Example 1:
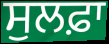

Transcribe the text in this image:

ਸੁਲਫ਼ਾ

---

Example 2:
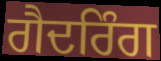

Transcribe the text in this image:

ਗੈਦਰਿੰਗ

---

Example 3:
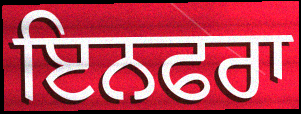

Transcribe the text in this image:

ਇਨਫਰਾ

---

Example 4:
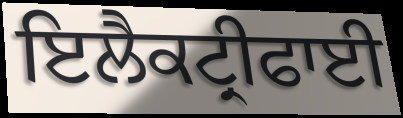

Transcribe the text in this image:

ਇਲੈਕਟ੍ਰੀਫਾਈ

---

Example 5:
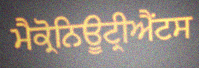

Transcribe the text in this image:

ਮੈਕ੍ਰੋਨਿਊਟ੍ਰੀਐਂਟਸ